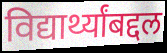
विद्यार्थ्यांबद्दल